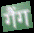
गैंग